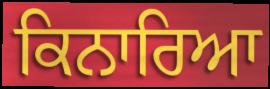
ਕਿਨਾਰਿਆ